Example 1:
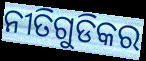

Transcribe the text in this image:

ନୀତିଗୁଡିକର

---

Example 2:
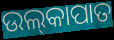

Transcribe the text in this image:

ଉଲ୍‍କାପାତ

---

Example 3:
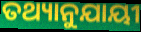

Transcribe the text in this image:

ତଥ୍ୟାନୁଯାୟୀ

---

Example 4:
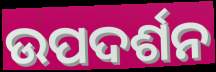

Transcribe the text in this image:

ଉପଦର୍ଶନ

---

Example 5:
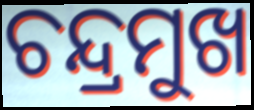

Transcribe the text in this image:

ଚନ୍ଦ୍ରମୁଖ